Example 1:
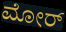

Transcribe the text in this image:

ಮೋರ್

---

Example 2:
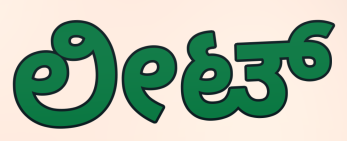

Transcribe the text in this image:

ಲೀಟ್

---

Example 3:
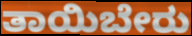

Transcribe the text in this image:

ತಾಯಿಬೇರು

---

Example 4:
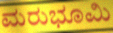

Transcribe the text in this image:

ಮರುಭೂಮಿ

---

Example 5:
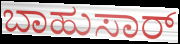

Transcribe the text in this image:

ಬಾಹುಸಾರ್